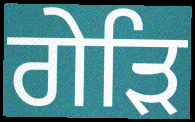
ਗੇੜਿ